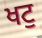
ਖਟੁ